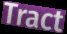
Tract